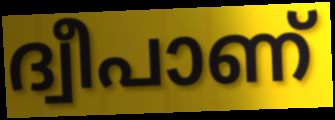
ദ്വീപാണ്